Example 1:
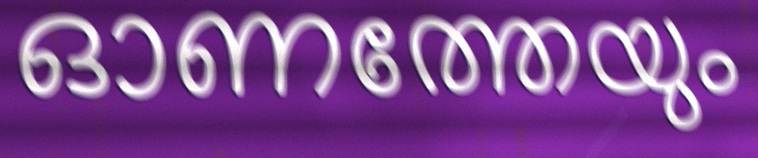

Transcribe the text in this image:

ഓണത്തേയും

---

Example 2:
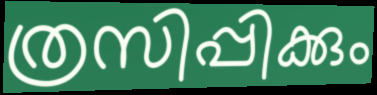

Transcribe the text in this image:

ത്രസിപ്പിക്കും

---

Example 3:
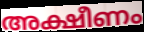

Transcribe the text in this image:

അക്ഷീണം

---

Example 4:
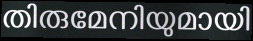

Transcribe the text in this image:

തിരുമേനിയുമായി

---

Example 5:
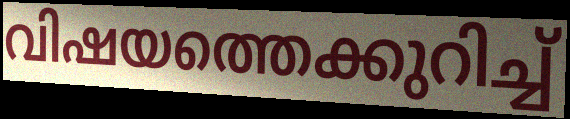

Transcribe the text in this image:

വിഷയത്തെക്കുറിച്ച്